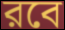
রবে